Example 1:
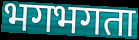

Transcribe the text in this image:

भगभगता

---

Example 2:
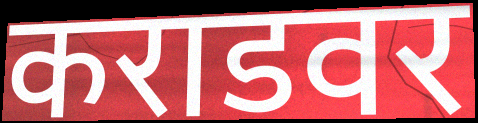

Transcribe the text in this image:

कराडवर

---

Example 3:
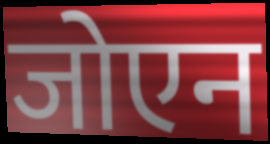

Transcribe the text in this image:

जोएन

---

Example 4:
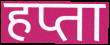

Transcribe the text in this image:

हप्ता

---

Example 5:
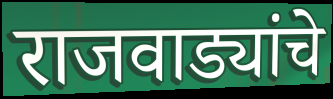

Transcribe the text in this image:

राजवाड्यांचे